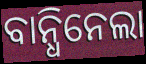
ବାନ୍ଧିନେଲା